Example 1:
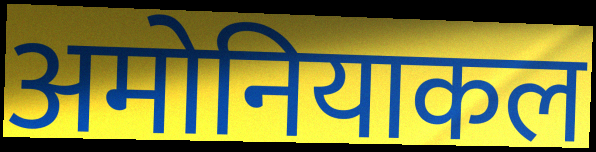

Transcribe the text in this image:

अमोनियाकल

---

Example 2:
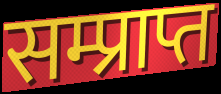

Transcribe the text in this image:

सम्प्राप्त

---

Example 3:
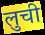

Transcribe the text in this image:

लुची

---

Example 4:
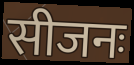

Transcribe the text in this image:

सीजनः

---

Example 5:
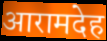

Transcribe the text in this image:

आरामदेह